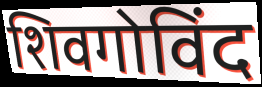
शिवगोविंद